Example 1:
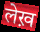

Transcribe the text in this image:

लेख़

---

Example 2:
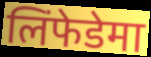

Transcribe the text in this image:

लिंफेडेमा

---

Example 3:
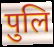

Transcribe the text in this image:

पुलि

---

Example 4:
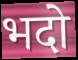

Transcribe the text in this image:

भदो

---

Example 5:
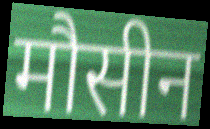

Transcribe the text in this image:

मौसीन